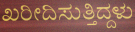
ಖರೀದಿಸುತ್ತಿದ್ದಳು